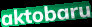
aktobaru